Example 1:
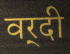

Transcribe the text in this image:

वर्दी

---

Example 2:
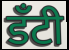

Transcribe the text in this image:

डँटी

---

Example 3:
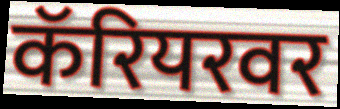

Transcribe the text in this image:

कॅरियरवर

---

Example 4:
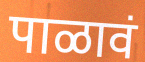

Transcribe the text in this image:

पाळावं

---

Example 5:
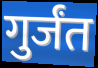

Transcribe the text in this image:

गुर्जंत